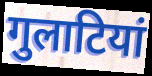
गुलाटियां